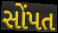
સોંપત